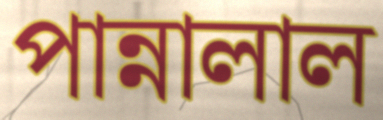
পান্নালাল